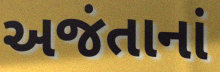
અજંતાનાં